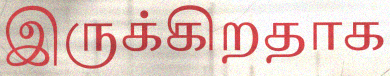
இருக்கிறதாக